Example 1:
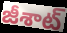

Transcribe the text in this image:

జీశాట్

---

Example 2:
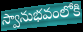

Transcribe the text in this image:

స్వానుభవంలోకి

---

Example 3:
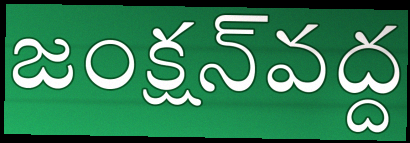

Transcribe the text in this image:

జంక్షన్‌వద్ద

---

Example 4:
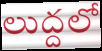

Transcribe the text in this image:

లుద్దలో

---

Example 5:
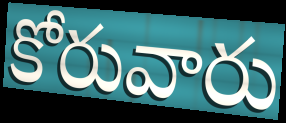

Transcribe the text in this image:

కోరువారు